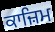
ਕਾਜ਼ਿਮ